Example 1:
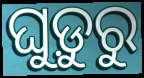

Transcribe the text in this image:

ଘୁଡ଼ୁରୁ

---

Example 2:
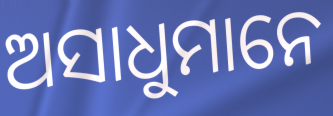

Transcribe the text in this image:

ଅସାଧୁମାନେ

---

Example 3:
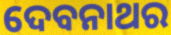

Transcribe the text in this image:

ଦେବନାଥର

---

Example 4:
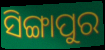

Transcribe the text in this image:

ସିଙ୍ଗାପୁର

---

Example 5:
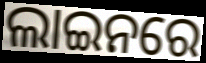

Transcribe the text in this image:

ଲାଇନରେ